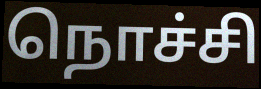
நொச்சி